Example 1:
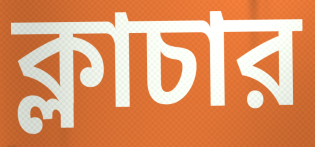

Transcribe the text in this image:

ক্লাচার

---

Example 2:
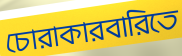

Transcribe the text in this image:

চোরাকারবারিতে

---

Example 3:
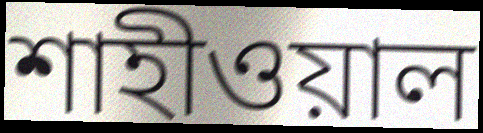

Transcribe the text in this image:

শাহীওয়াল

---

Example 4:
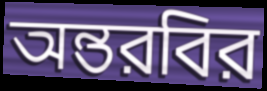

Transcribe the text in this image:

অন্তরবির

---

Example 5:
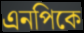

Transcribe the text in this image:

এনপিকে